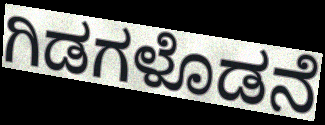
ಗಿಡಗಳೊಡನೆ